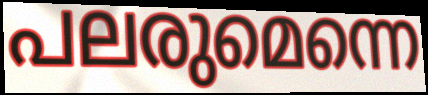
പലരുമെന്നെ